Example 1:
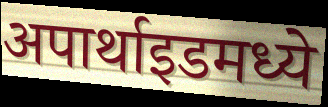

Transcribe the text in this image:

अपार्थाइडमध्ये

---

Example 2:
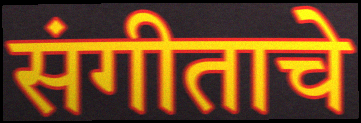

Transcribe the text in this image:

संगीताचे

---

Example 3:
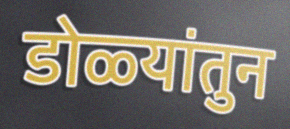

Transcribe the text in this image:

डोळ्यांतुन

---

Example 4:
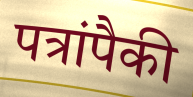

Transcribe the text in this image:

पत्रांपैकी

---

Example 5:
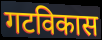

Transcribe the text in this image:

गटविकास